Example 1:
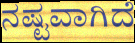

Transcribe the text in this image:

ನಷ್ಟವಾಗಿದೆ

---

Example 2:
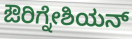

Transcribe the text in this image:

ಔರಿಗ್ನೇಶಿಯನ್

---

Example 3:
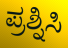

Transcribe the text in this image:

ಪ್ರಶ್ನಿಸಿ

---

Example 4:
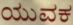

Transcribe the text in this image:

ಯುವಕ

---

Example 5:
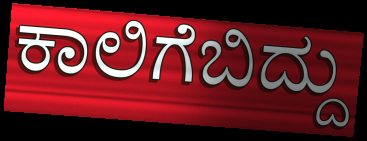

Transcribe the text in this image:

ಕಾಲಿಗೆಬಿದ್ದು